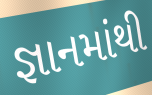
જ્ઞાનમાંથી